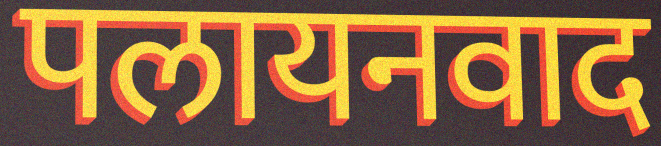
पलायनवाद